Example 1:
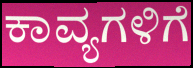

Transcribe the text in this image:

ಕಾವ್ಯಗಳಿಗೆ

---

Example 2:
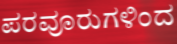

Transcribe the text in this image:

ಪರವೂರುಗಳಿಂದ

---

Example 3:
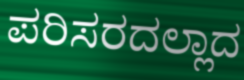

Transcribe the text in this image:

ಪರಿಸರದಲ್ಲಾದ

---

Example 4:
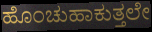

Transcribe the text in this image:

ಹೊಂಚುಹಾಕುತ್ತಲೇ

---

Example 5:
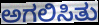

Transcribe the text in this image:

ಅಗಲಿಸಿತು